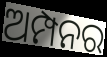
ଅମ୍ପନର